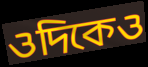
ওদিকেও